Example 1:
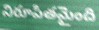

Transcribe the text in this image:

నిరూపితమైంది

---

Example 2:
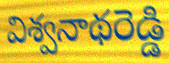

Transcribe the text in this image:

విశ్వనాథరెడ్డి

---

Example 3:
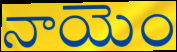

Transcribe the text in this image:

నాయెం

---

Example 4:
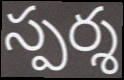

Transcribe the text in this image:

స్పర్శ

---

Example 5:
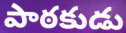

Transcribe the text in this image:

పాఠకుడు